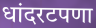
धांदरटपणा